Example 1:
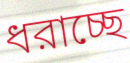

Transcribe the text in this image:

ধরাচ্ছে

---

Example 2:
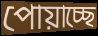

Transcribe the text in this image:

পোয়াচ্ছে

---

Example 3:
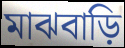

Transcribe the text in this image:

মাঝবাড়ি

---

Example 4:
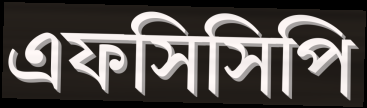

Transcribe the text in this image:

এফসিসিপি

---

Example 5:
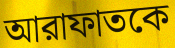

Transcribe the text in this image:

আরাফাতকে